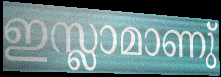
ഇസ്ലാമാണു്